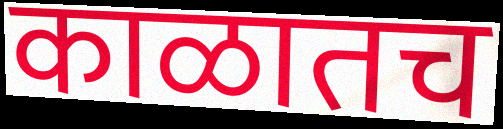
काळातच